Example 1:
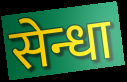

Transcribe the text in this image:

सेन्धा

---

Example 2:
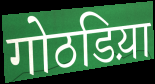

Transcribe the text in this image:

गोठडिय़ा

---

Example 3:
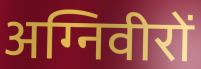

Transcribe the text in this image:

अग्निवीरों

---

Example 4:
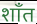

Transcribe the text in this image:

शाँत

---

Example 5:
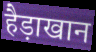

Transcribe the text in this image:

हैड़ाखान